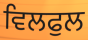
ਵਿਲਫੁਲ